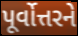
પૂર્વોત્તરને